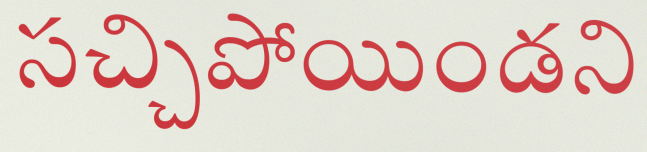
సచ్చిపోయిండని